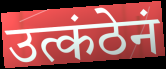
उत्कंठेनं